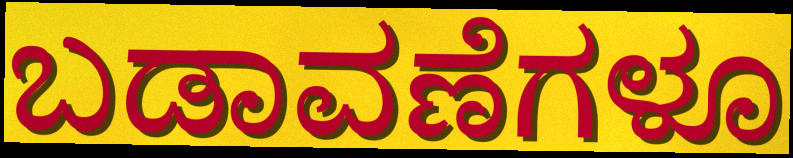
ಬಡಾವಣೆಗಳೂ